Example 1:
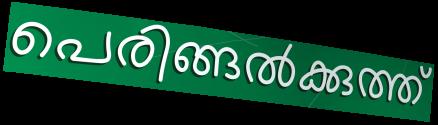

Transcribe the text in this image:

പെരിങ്ങൽക്കുത്ത്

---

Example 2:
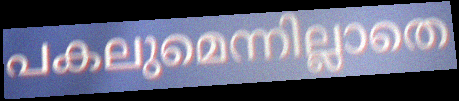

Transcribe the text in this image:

പകലുമെന്നില്ലാതെ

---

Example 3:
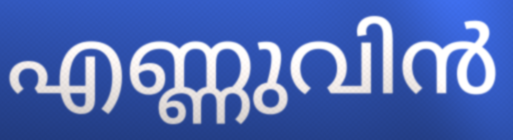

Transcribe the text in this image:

എണ്ണുവിൻ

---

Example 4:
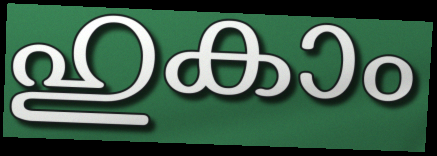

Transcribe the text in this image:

ഹുകാം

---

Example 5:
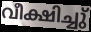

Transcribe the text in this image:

വീക്ഷിച്ചു്